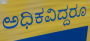
ಅಧಿಕವಿದ್ದರೂ